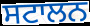
ਸਟਾਲਨ